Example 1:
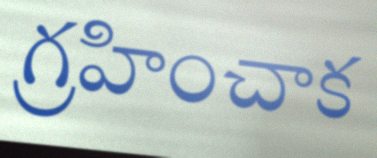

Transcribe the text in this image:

గ్రహించాక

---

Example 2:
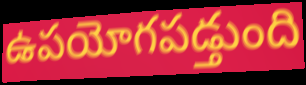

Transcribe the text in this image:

ఉపయోగపడ్తుంది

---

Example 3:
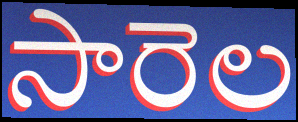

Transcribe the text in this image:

సారెల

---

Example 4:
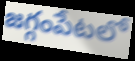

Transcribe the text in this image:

జగ్గంపేటలో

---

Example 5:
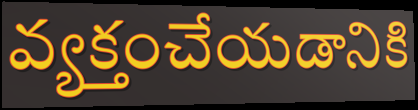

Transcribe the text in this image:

వ్యక్తంచేయడానికి